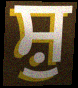
ਸ਼ੁ